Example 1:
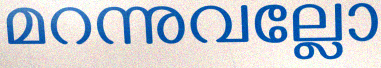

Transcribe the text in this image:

മറന്നുവല്ലോ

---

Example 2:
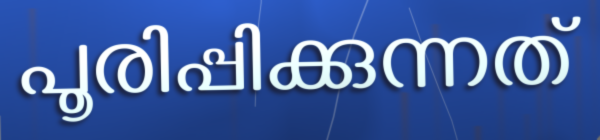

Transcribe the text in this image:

പൂരിപ്പിക്കുന്നത്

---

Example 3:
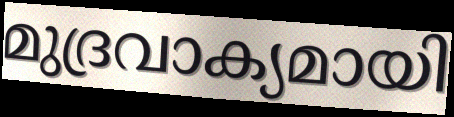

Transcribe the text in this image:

മുദ്രവാക്യമായി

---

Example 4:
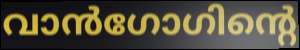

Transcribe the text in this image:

വാൻഗോഗിന്റെ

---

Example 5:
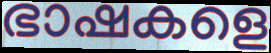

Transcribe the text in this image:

ഭാഷകളെ